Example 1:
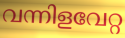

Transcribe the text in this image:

വന്നിളവേറ്റ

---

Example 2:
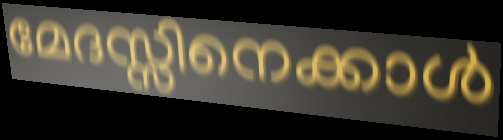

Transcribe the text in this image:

മേദസ്സിനെക്കാൾ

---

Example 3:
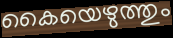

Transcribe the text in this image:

കൈയെഴുത്തും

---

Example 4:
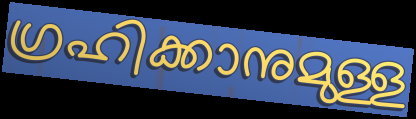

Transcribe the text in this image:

ഗ്രഹിക്കാനുമുള്ള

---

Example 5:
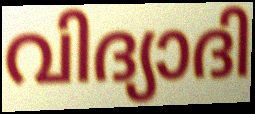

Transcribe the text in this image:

വിദ്യാദി